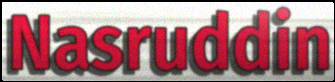
Nasruddin